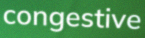
congestive